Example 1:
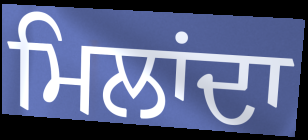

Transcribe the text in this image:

ਮਿਲਾਂਦਾ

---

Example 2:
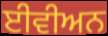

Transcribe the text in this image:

ਈਵੀਅਨ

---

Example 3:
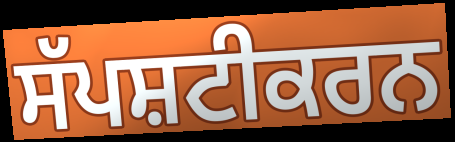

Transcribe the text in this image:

ਸੱਪਸ਼ਟੀਕਰਨ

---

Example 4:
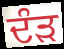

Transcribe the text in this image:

ਦੰੜ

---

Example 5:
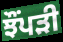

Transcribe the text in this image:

ਝੌਂਪੜੀ